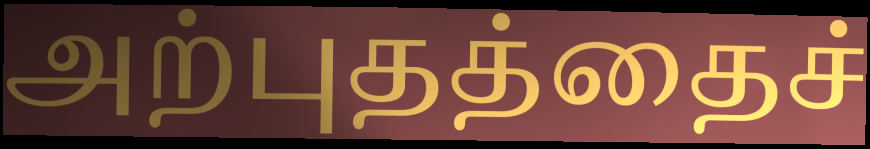
அற்புதத்தைச்